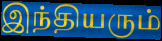
இந்தியரும்